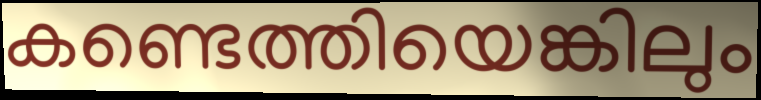
കണ്ടെത്തിയെങ്കിലും